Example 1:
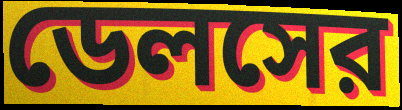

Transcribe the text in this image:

ডেলসের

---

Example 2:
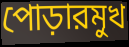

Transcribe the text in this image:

পোড়ারমুখ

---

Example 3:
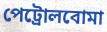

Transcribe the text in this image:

পেট্রোলবোমা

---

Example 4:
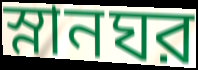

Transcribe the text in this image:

স্নানঘর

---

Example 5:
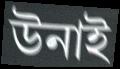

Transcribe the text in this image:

উনাই